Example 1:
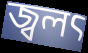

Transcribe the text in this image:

জ্বলৎ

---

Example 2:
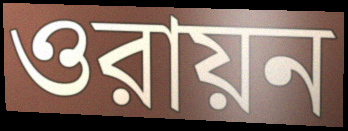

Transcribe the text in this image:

ওরায়ন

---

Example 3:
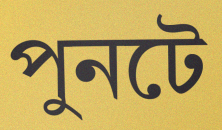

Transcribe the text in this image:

পুনটে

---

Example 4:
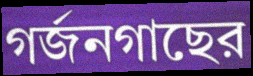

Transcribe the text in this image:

গর্জনগাছের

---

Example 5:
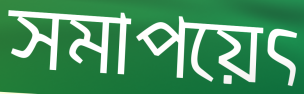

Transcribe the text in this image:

সমাপয়েৎ